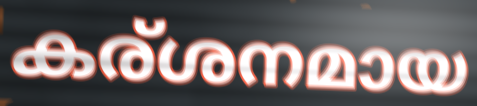
കര്ശനമായ